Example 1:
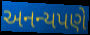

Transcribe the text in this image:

અનન્યપણે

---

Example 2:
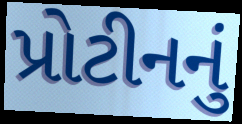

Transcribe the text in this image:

પ્રોટીનનું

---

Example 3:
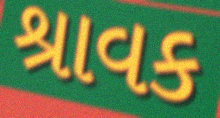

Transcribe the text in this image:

શ્રાવક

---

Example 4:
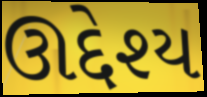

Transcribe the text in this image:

ઊદ્દેશ્ય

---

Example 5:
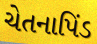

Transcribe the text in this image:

ચેતનાપિંડ